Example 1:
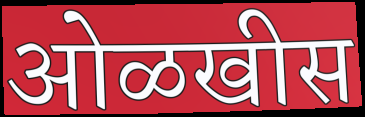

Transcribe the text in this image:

ओळखीस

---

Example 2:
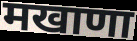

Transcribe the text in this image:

मखाणा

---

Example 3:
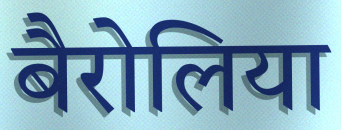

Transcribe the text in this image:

बैरोलिया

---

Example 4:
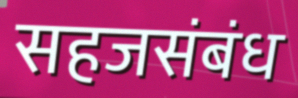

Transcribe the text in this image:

सहजसंबंध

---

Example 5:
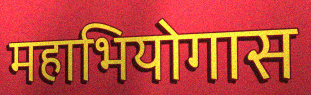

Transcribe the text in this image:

महाभियोगास